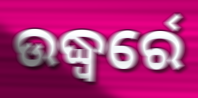
ଉଦ୍ଧ୍ୱର୍ରେ